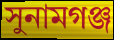
সুনামগঞ্জ